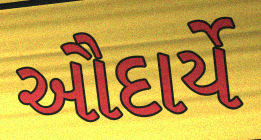
ઔદાર્યે